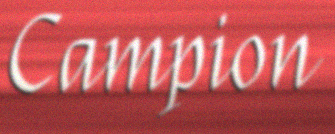
Campion